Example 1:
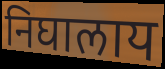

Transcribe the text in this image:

निघालाय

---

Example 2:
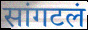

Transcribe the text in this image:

सांगटलं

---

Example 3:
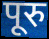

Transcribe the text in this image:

पूरु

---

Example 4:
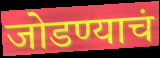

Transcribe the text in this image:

जोडण्याचं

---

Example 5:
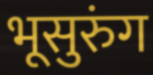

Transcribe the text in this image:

भूसुरुंग